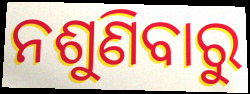
ନଶୁଣିବାରୁ